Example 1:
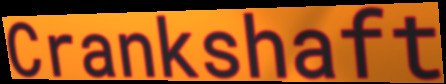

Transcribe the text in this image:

Crankshaft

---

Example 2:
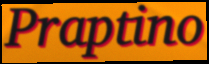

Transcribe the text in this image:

Praptino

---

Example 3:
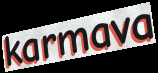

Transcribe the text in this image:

karmava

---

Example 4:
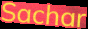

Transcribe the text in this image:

Sachar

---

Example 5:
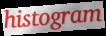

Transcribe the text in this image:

histogram